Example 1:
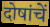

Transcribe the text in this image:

दोषांचें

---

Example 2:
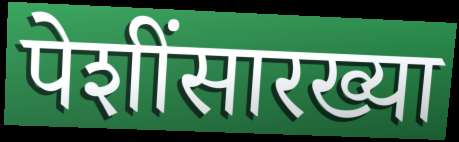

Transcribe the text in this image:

पेशींसारख्या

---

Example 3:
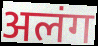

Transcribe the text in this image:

अलंग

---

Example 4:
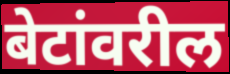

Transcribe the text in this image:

बेटांवरील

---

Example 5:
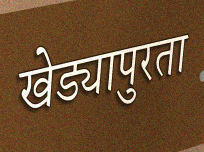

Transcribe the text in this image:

खेड्यापुरता